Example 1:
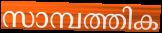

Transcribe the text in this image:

സാമ്പത്തിക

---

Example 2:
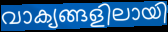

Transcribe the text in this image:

വാക്യങ്ങളിലായി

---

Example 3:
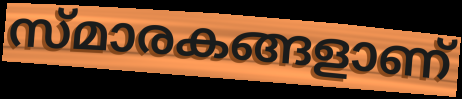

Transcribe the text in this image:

സ്മാരകങ്ങളാണ്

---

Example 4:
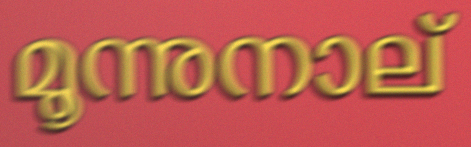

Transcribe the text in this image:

മൂന്നുനാല്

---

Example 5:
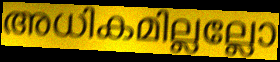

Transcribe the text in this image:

അധികമില്ലല്ലോ